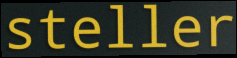
steller